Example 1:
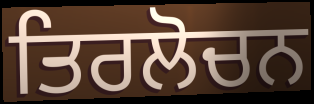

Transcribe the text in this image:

ਤਿਰਲੋਚਨ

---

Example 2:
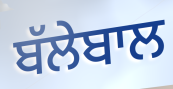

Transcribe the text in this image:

ਬੱਲੇਬਾਲ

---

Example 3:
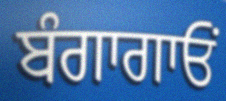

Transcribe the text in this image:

ਬੰਗਾਗਾਓਂ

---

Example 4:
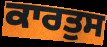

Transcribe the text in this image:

ਕਾਰਤੁਸ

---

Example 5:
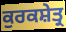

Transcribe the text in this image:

ਕੁਰਕਸ਼ੇਤ੍ਰ